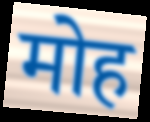
मोह